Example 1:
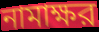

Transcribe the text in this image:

নামাক্ষর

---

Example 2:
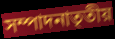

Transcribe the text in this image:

সম্পাদনাতৃতীয়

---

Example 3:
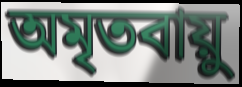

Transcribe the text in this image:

অমৃতবায়ু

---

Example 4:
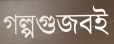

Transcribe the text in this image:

গল্পগুজবই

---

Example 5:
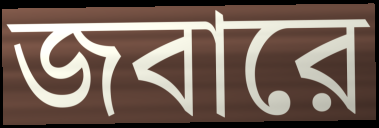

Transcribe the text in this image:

জবারে